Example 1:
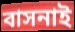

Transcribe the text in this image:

বাসনাই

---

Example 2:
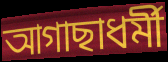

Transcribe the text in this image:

আগাছাধর্মী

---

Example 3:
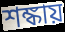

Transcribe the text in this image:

শঙ্কায়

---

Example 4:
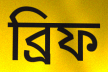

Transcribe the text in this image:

ব্রিফ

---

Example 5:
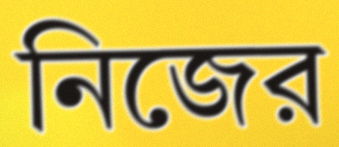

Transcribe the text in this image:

নিজের